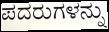
ಪದರುಗಳನ್ನು